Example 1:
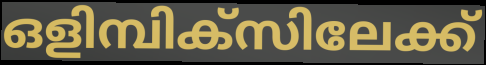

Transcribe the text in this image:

ഒളിമ്പിക്സിലേക്ക്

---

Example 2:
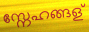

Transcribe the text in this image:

സ്നേഹങ്ങള്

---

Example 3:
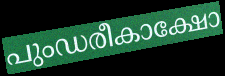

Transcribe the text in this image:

പുംഡരീകാക്ഷോ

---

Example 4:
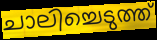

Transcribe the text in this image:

ചാലിച്ചെടുത്ത്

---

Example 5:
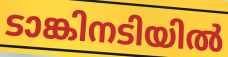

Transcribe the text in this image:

ടാങ്കിനടിയിൽ